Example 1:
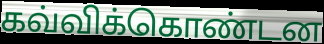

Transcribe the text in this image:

கவ்விக்கொண்டன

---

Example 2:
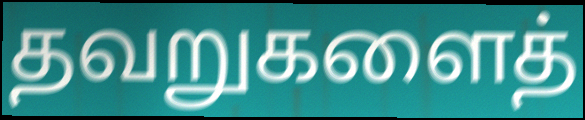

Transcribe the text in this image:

தவறுகளைத்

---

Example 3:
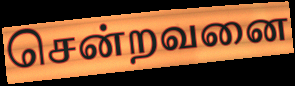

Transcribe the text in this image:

சென்றவனை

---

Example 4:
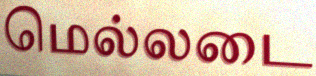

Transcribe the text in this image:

மெல்லடை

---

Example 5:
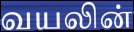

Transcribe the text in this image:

வயலின்